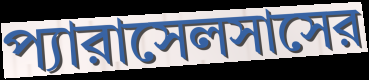
প্যারাসেলসাসের